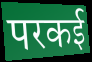
परकई